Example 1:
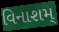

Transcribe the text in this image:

વિનાશમ્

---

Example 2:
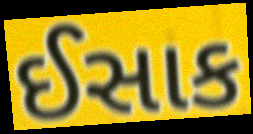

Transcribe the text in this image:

ઈસાક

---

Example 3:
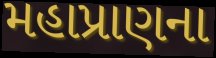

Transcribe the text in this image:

મહાપ્રાણના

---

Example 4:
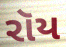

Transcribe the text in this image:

રૉય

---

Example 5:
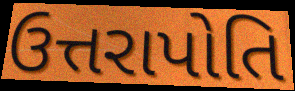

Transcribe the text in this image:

ઉત્તરાપોતિ